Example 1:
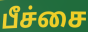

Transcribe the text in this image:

பீச்சை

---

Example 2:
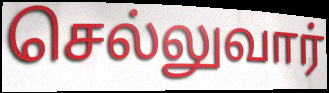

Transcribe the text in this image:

செல்லுவார்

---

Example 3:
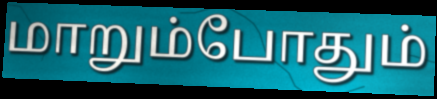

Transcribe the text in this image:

மாறும்போதும்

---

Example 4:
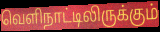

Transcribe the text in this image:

வெளிநாட்டிலிருக்கும்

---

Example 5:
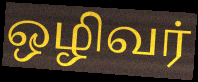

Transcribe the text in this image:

ஒழிவர்